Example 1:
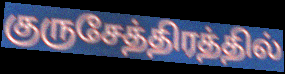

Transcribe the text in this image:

குருசேத்திரத்தில்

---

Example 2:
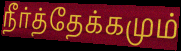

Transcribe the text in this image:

நீர்த்தேக்கமும்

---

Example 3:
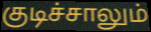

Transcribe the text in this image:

குடிச்சாலும்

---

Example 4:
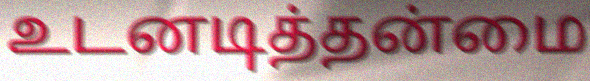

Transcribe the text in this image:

உடனடித்தன்மை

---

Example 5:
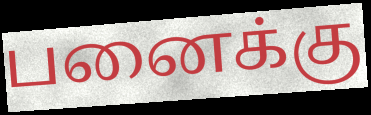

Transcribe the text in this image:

பனைக்கு